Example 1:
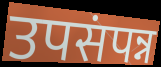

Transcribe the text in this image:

उपसंपन्न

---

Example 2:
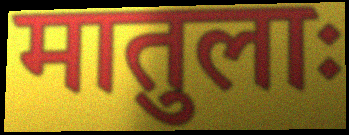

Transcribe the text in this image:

मातुलाः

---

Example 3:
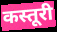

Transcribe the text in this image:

कस्तूरी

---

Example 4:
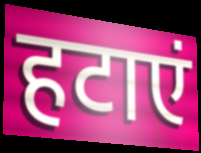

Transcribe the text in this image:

हटाएं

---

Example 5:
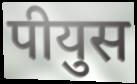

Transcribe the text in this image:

पीयुस